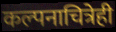
कल्पनाचित्रेही